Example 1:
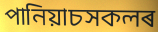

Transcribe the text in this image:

পানিয়াচসকলৰ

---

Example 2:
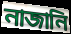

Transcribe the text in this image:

নাজানি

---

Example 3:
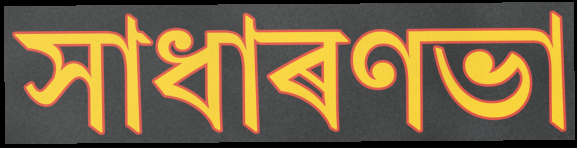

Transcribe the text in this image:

সাধাৰণভা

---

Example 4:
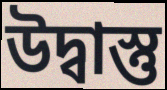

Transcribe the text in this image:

উদ্বাস্তু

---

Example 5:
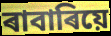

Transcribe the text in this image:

ৰাবাৰিয়ে